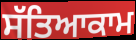
ਸੱਤਿਆਕਾਮ